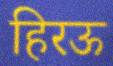
हिरऊ